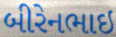
બીરેનભાઇ